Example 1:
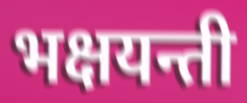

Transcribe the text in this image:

भक्षयन्ती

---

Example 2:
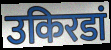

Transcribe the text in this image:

उकिरडां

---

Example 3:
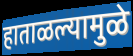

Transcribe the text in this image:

हाताळल्यामुळे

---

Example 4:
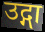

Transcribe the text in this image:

उद्गा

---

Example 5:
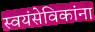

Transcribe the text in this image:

स्वयंसेविकांना